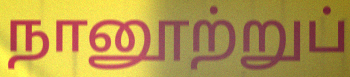
நானூற்றுப்